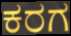
ಕರಗ